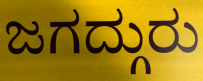
ಜಗದ್ಗುರು